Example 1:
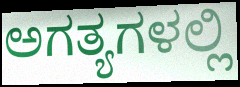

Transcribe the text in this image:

ಅಗತ್ಯಗಳಲ್ಲಿ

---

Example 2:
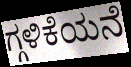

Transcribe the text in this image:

ಗ್ಗಳಿಕೆಯನೆ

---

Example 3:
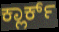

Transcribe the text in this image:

ಕ್ಲಾರ್ಕ್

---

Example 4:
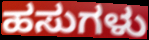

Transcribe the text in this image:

ಹಸುಗಳು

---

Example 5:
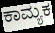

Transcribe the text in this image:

ಕಾಮ್ಯಕ